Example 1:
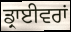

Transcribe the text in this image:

ਡ੍ਰਾਈਵਰਾਂ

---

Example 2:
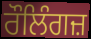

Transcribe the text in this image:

ਰੌਲਿੰਗਜ਼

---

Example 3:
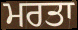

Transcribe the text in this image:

ਮਰਤਾ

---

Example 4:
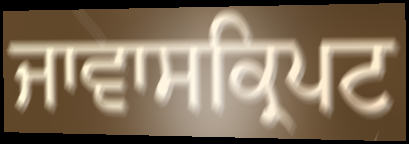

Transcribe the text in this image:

ਜਾਵਾਸਕ੍ਰਿਪਟ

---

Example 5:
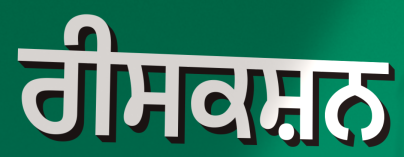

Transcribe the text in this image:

ਰੀਸਕਸ਼ਨ